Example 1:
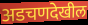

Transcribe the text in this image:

अडचणदेखील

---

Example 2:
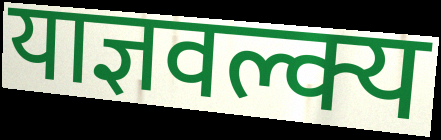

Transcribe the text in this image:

याज्ञवल्क्य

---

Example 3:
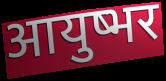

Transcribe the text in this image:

आयुष्भर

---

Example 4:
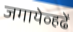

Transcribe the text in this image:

जगायेव्हढें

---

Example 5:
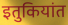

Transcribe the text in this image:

इतुकियांत